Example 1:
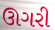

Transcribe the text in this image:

ઊગરી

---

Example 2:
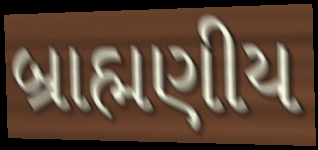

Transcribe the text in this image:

બ્રાહ્મણીય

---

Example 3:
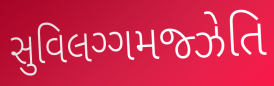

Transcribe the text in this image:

સુવિલગ્ગમજ્ઝેતિ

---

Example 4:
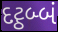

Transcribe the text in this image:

દટ્ઠબ્બં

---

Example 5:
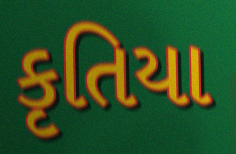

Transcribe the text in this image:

કૃતિયા